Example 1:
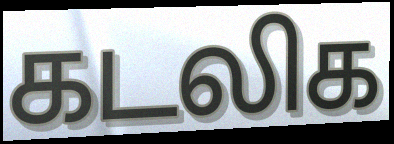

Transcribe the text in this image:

கடலிக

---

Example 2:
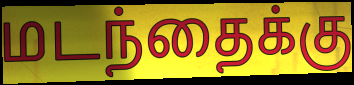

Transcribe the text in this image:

மடந்தைக்கு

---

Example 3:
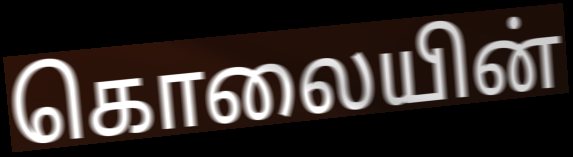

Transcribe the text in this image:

கொலையின்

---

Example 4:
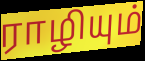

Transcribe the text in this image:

ராழியும்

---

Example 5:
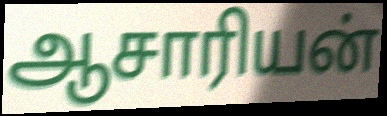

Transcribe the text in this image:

ஆசாரியன்